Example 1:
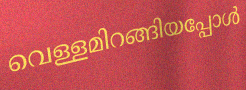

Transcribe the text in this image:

വെള്ളമിറങ്ങിയപ്പോൾ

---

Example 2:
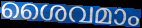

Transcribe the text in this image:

ശൈവമാം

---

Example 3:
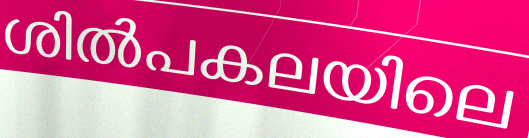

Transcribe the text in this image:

ശിൽപകലയിലെ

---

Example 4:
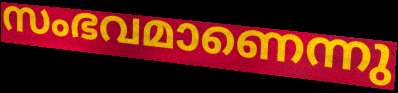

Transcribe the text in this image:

സംഭവമാണെന്നു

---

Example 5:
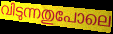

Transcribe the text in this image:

വിടുന്നതുപോലെ